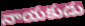
నాయకుడు